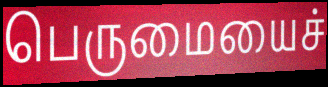
பெருமையைச்